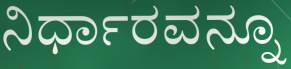
ನಿರ್ಧಾರವನ್ನೂ